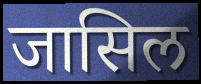
जासिल